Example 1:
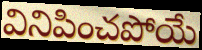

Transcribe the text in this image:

వినిపించపోయే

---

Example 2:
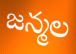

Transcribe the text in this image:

జన్మల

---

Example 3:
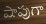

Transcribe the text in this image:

షాపుగా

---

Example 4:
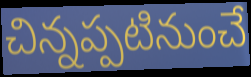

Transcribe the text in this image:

చిన్నప్పటినుంచే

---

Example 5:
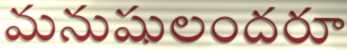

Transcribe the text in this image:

మనుషులందరూ